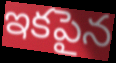
ఇకపైన